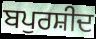
ਬਪੁਰਸ਼ੀਦ